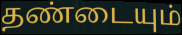
தண்டையும்